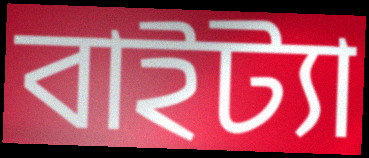
বাইট্যা